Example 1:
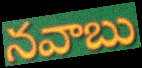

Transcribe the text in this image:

నవాబు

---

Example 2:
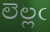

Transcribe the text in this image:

లెల్లఁ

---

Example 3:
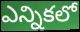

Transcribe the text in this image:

ఎన్నికలో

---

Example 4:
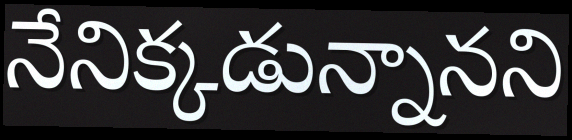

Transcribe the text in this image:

నేనిక్కడున్నానని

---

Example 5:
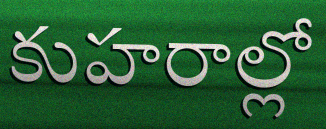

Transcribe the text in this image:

కుహరాల్లో